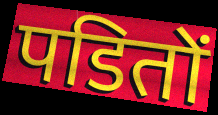
पडितों